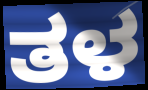
ತಳ